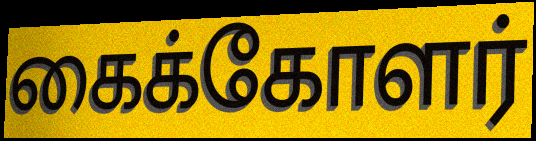
கைக்கோளர்